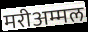
मरीअम्मल